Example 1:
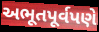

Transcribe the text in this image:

અભૂતપૂર્વપણે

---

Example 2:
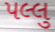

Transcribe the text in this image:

પલ્લુ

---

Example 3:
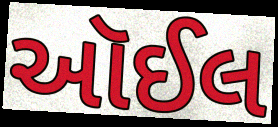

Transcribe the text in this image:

ઑઈલ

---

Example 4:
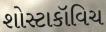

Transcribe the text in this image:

શોસ્ટાકૉવિચ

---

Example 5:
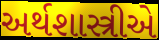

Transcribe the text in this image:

અર્થશાસ્ત્રીએ